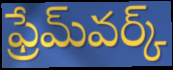
ఫ్రేమ్‌వర్క్